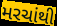
મરચાંથી